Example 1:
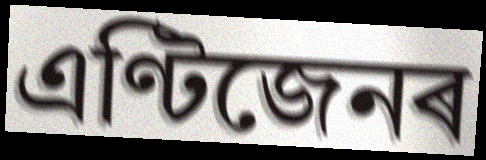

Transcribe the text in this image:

এণ্টিজেনৰ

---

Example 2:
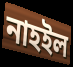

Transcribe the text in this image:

নাহইল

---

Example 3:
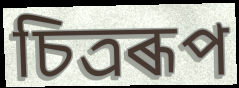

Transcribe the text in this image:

চিত্ৰৰূপ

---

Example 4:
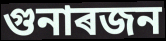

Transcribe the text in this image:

গুনাৰজন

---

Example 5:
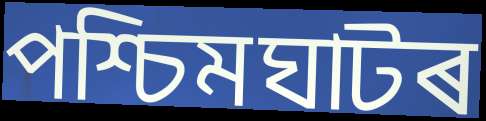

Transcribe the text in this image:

পশ্চিমঘাটৰ